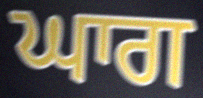
ਘਾਗ